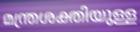
മന്ത്രശക്തിയുള്ള